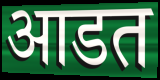
आडत